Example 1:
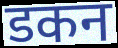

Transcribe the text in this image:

डकन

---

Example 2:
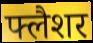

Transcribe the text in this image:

फ्लैशर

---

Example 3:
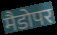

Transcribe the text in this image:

मैडोपर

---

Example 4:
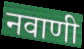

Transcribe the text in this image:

नवाणी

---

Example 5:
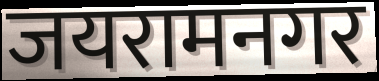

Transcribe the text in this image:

जयरामनगर